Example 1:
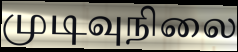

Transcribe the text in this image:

முடிவுநிலை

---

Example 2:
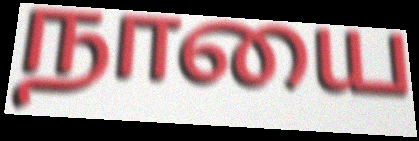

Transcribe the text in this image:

நாயை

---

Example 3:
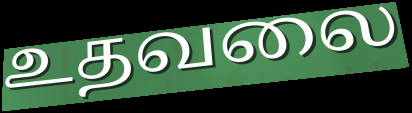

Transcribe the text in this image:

உதவலை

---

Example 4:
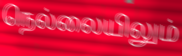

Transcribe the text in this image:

நெல்லையிலும்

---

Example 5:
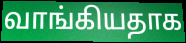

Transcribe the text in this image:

வாங்கியதாக